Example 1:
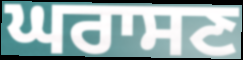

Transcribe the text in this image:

ਘਰਾਸਣ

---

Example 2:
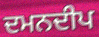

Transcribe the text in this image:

ਦਮਨਦੀਪ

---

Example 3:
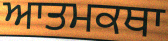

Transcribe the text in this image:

ਆਤਮਕਥਾ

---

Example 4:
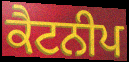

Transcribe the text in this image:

ਕੈਟਨੀਪ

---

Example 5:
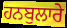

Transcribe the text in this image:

ਹਨਬੁਲਾਰੇ